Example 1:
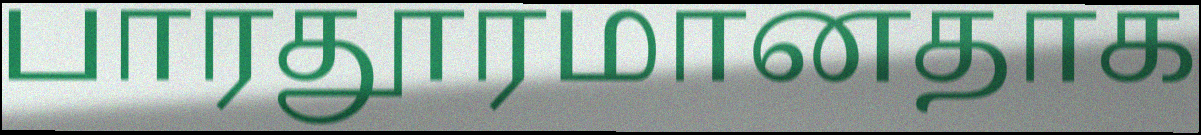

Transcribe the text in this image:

பாரதூரமானதாக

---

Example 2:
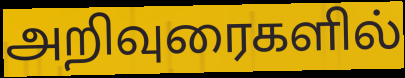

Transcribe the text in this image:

அறிவுரைகளில்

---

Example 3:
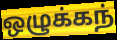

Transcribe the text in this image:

ஒழுக்கந்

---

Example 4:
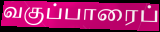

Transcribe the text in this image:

வகுப்பாரைப்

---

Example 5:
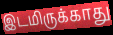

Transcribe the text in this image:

இடமிருக்காது